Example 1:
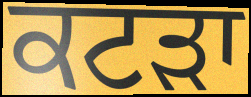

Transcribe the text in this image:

ਕਟੜਾ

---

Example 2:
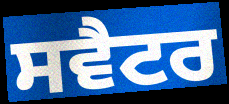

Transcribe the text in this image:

ਸਵੈਟਰ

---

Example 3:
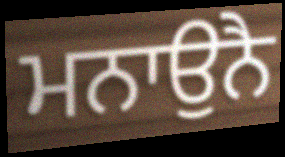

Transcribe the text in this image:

ਮਨਾਉਨੈ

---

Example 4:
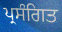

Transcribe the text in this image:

ਪ੍ਰਸੰਗਿਤ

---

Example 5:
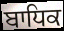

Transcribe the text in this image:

ਬਾਧਿਕ